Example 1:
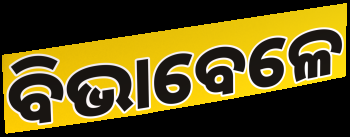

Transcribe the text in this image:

ବିଭାବେଳେ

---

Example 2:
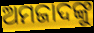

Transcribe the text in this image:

ଅମଜାଦଙ୍କୁ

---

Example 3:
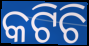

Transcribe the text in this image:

କଟିଚି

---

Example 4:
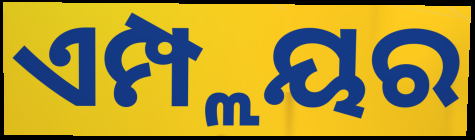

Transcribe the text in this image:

ଏମ୍ପ୍ଲୟର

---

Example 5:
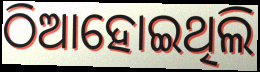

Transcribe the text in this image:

ଠିଆହୋଇଥିଲି